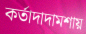
কর্তাদাদামশায়